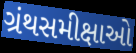
ગ્રંથસમીક્ષાઓ